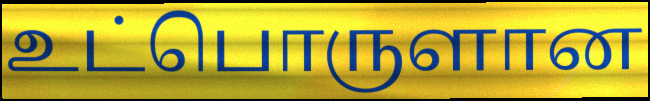
உட்பொருளான